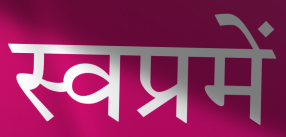
स्वप्रमें